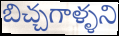
బిచ్చగాళ్ళని